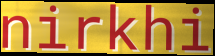
nirkhi